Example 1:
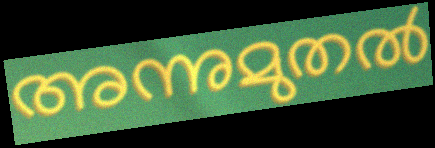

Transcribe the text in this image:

അന്നുമുതൽ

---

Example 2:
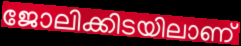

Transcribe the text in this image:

ജോലിക്കിടയിലാണ്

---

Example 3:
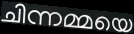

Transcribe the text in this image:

ചിന്നമ്മയെ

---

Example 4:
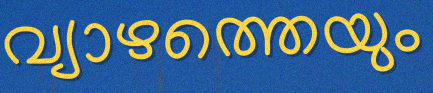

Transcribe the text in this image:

വ്യാഴത്തെയും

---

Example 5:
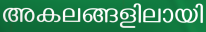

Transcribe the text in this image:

അകലങ്ങളിലായി